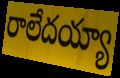
రాలేదయ్యా